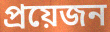
প্রয়েজন